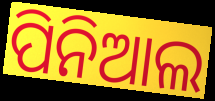
ପିନିଆଲ